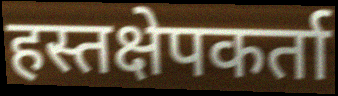
हस्तक्षेपकर्ता